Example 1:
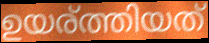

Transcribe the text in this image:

ഉയര്ത്തിയത്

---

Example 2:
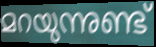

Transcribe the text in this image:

മറയുന്നുണ്ട്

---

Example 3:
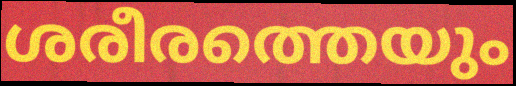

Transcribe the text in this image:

ശരീരത്തെയും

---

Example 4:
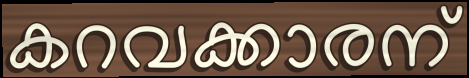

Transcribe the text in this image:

കറവക്കാരന്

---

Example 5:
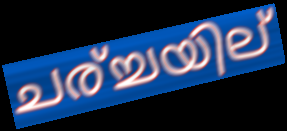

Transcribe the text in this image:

ചര്ച്ചയില്